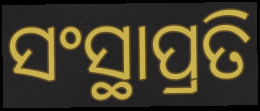
ସଂସ୍ଥାପ୍ରତି